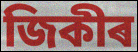
জিকীৰ